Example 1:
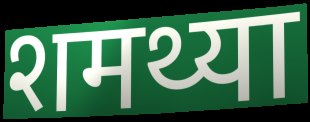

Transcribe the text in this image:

शमथ्या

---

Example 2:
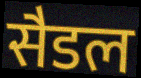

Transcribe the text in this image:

सैडल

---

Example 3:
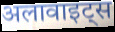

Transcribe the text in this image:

अलावाइट्स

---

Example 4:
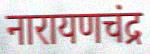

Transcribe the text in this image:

नारायणचंद्र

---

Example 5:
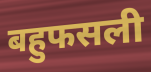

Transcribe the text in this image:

बहुफसली